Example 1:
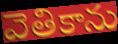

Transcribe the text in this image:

వెతికాను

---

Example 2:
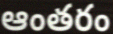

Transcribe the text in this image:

ఆంతరం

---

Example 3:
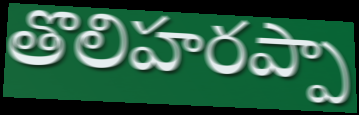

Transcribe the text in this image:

తొలిహరప్పా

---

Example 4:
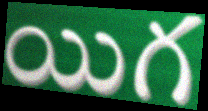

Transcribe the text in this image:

యిగ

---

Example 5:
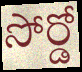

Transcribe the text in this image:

సోర్డో